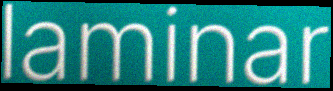
laminar